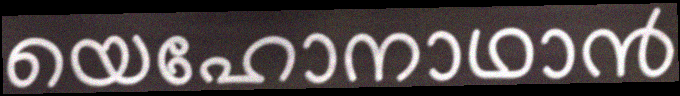
യെഹോനാഥാൻ